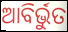
ଆବିର୍ଭୁତ